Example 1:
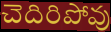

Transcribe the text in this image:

చెదిరిపోవు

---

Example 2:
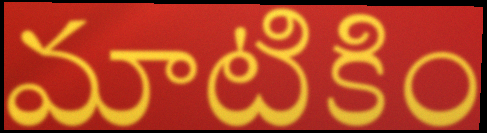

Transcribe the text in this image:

మాటికిం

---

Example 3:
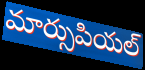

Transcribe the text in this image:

మార్సుపియల్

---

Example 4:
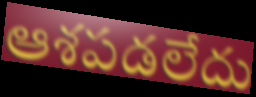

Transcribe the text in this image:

ఆశపడలేదు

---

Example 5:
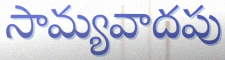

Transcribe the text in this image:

సామ్యవాదపు